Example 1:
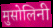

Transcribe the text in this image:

मुसोलिनी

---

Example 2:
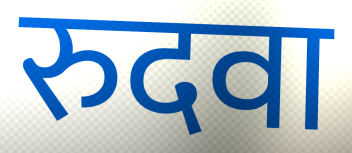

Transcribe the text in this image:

रुदवा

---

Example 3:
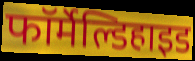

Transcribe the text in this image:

फॉर्मेल्डिहाइड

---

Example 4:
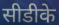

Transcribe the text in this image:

सीडीके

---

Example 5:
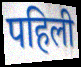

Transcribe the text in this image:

पहिली